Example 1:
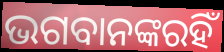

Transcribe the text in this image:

ଭଗବାନଙ୍କରହିଁ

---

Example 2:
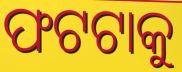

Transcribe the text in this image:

ଫଟଟାକୁ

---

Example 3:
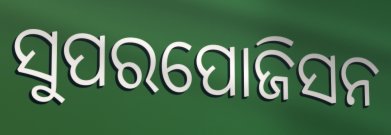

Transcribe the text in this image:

ସୁପରପୋଜିସନ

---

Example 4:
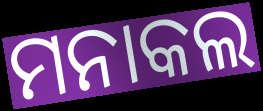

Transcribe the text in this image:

ମନାକଲ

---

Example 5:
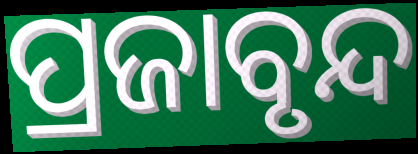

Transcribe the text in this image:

ପ୍ରଜାବୃନ୍ଦ